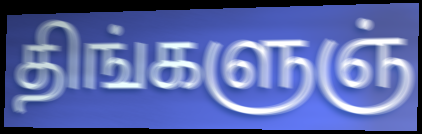
திங்களுஞ்